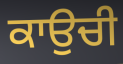
ਕਾਉਚੀ